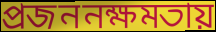
প্রজননক্ষমতায়